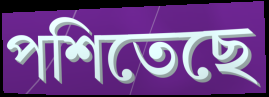
পশিতেছে